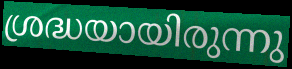
ശ്രദ്ധയായിരുന്നു